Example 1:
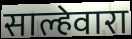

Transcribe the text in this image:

साल्हेवारा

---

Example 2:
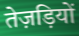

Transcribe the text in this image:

तेज़ड़ियों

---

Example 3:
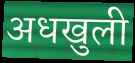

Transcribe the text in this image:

अधखुली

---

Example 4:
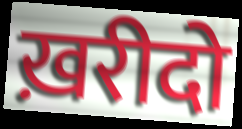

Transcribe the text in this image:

ख़रीदो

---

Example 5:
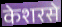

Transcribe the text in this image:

केशरसे